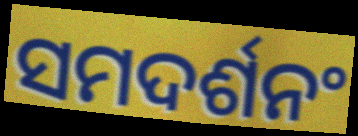
ସମଦର୍ଶନଂ